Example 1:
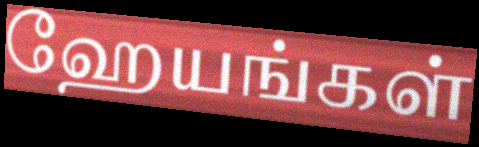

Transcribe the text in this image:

ஹேயங்கள்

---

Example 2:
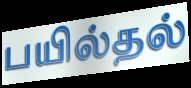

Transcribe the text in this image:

பயில்தல்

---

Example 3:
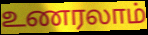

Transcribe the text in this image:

உணரலாம்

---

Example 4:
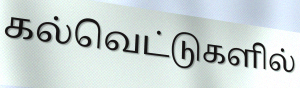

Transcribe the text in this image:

கல்வெட்டுகளில்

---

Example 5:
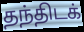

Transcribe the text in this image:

தந்திடக்